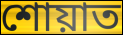
শোয়াত